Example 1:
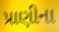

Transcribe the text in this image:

પ્રાણીના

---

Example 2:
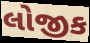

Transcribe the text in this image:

લોજીક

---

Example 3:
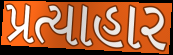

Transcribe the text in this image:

પ્રત્યાહાર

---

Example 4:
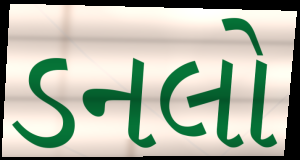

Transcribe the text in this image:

ડનલો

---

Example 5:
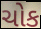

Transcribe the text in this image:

ચોક